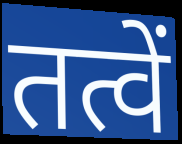
तत्वें